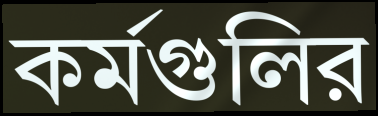
কর্মগুলির